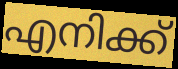
എനിക്ക്